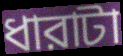
ধারাটা